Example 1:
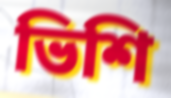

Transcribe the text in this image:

ভিশি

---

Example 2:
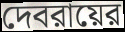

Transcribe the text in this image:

দেবরায়ের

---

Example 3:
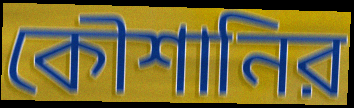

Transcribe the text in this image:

কৌশানির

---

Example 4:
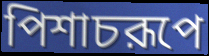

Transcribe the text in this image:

পিশাচরূপে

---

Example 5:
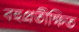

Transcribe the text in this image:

বহুপ্রতীক্ষিত